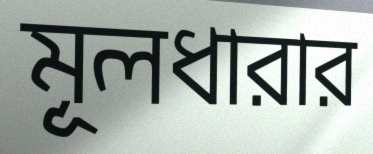
মূলধারার